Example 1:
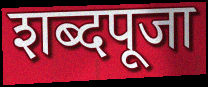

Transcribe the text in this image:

शब्दपूजा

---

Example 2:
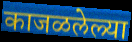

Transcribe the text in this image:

काजळलेल्या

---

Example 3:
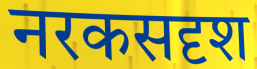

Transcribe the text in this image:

नरकसदृश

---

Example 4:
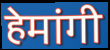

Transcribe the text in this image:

हेमांगी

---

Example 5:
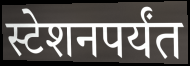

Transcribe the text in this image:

स्टेशनपर्यंत